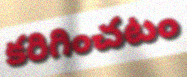
కరిగించటం